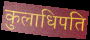
कुलाधिपति